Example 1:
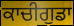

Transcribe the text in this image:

ਕਾਚੀਗੁਡਾ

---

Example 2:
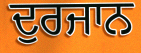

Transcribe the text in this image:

ਦੁਰਜਾਨ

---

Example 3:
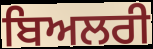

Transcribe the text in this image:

ਬਿਅਲਰੀ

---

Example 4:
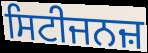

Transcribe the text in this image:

ਸਿਟੀਜਨਜ਼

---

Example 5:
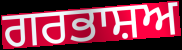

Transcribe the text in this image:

ਗਰਭਾਸ਼ਅ